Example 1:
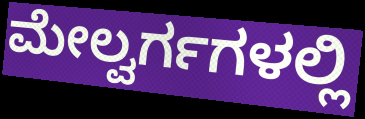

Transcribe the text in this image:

ಮೇಲ್ವರ್ಗಗಳಲ್ಲಿ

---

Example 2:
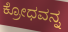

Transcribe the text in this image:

ಕ್ರೋಧವನ್ನ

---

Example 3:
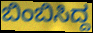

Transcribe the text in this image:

ಬಿಂಬಿಸಿದ್ದ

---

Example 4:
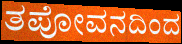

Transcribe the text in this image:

ತಪೋವನದಿಂದ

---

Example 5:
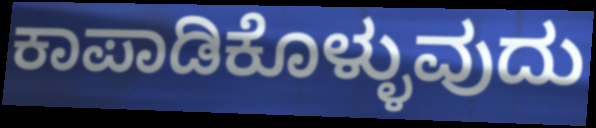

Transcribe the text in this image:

ಕಾಪಾಡಿಕೊಳ್ಳುವುದು